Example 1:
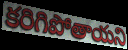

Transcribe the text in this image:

కరిగిపోతాయని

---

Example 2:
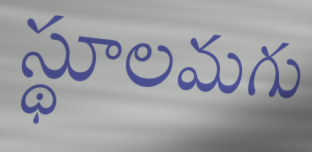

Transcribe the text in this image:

స్థూలమగు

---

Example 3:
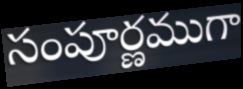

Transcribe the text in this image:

సంపూర్ణముగా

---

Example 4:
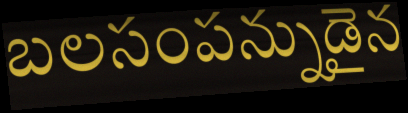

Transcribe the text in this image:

బలసంపన్నుడైన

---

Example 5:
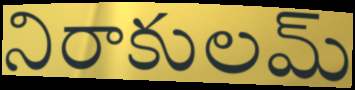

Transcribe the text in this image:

నిరాకులమ్